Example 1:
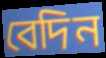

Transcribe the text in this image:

বেদিন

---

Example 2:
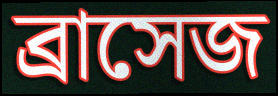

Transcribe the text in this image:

ব্রাসেজ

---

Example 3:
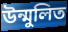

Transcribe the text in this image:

উন্মুলিত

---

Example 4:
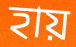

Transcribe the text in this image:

হায়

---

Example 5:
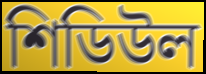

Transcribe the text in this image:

শিডিউল